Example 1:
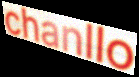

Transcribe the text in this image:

chanllo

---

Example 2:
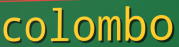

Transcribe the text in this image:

colombo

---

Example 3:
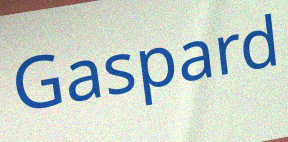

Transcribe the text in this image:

Gaspard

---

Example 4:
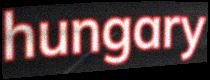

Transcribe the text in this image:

hungary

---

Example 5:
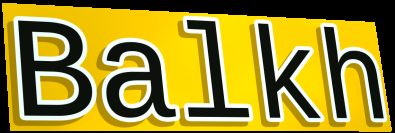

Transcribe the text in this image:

Balkh